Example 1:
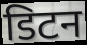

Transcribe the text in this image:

डिटन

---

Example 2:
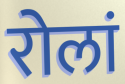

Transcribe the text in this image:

रोलां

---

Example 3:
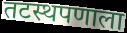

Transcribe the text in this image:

तटस्थपणाला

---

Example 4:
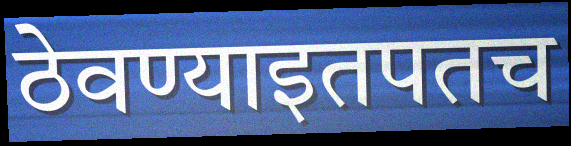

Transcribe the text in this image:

ठेवण्याइतपतच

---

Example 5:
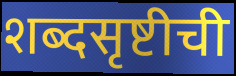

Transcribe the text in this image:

शब्दसृष्टीची